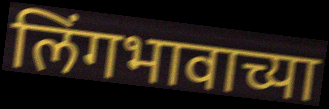
लिंगभावाच्या